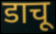
डाचू